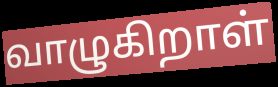
வாழுகிறாள்